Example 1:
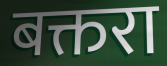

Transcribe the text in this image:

बक्तरा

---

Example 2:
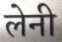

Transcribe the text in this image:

लेनी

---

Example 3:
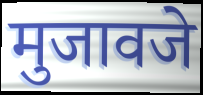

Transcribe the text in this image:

मुजावजे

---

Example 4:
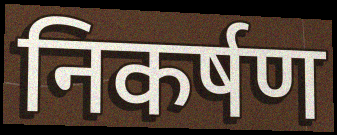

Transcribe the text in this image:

निकर्षण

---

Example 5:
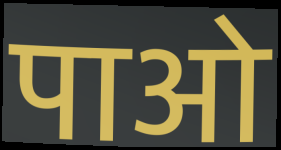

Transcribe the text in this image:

पाओ